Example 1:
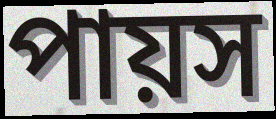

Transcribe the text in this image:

পায়স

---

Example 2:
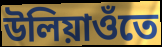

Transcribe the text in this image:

উলিয়াওঁতে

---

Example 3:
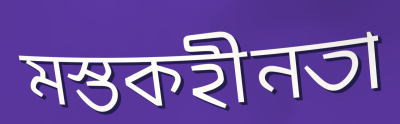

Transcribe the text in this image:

মস্তকহীনতা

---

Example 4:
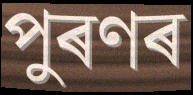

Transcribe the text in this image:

পুৰণৰ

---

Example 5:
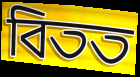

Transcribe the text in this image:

বিতত